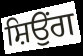
ਸ਼ਿਉਂਗ